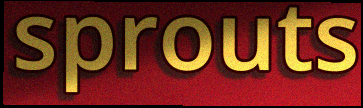
sprouts